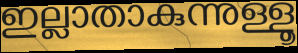
ഇല്ലാതാകുന്നുള്ളൂ